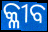
କ୍ଳୀବ